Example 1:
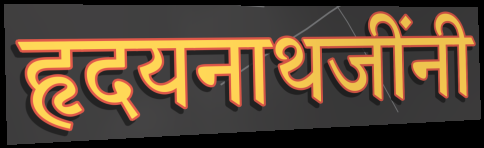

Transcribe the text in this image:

हृदयनाथजींनी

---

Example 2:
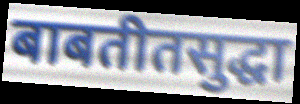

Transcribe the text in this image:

बाबतीतसुद्धा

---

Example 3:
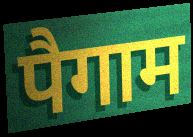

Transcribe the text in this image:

पैगाम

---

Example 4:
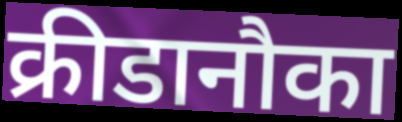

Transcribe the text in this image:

क्रीडानौका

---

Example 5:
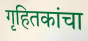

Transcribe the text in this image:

गृहितकांचा